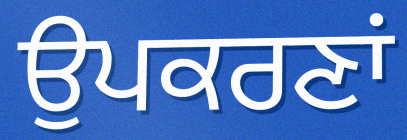
ਉਪਕਰਣਾਂ